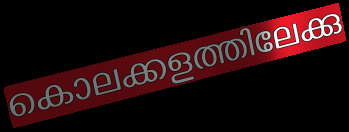
കൊലക്കളത്തിലേക്കു